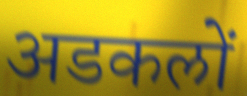
अडकलों